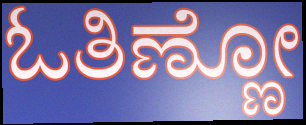
ಓತಿಣ್ಣೋ